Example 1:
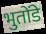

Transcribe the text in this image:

भुतोंडे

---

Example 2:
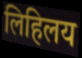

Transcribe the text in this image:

लिहिलय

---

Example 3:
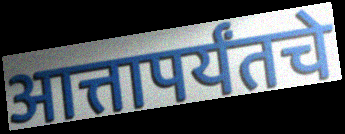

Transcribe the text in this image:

आत्तापर्यंतचे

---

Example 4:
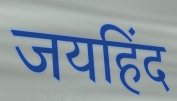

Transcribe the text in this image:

जयहिंद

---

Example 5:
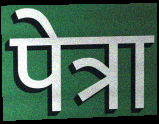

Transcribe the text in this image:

पेत्रा